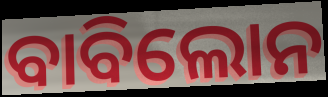
ବାବିଲୋନ